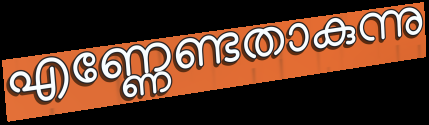
എണ്ണേണ്ടതാകുന്നു